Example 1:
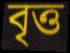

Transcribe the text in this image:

বৃত্ত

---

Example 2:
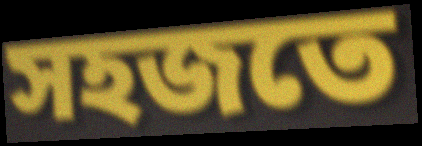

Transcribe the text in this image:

সহজতে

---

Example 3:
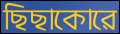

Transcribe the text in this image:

ছিছাকোৱে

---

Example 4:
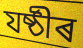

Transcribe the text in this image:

যষ্ঠীৰ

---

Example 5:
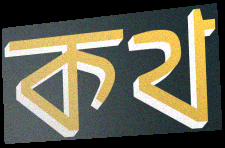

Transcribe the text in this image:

কথ